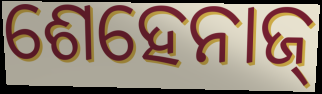
ଶେହେନାଜ୍